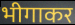
भीगाकर